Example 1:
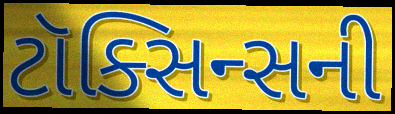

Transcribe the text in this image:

ટૉક્સિન્સની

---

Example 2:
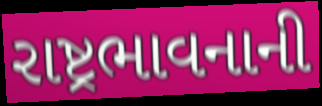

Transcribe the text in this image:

રાષ્ટ્રભાવનાની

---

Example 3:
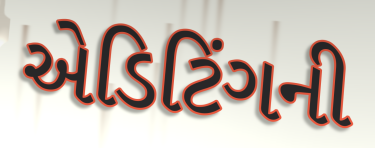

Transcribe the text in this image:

એડિટિંગની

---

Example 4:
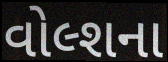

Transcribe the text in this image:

વોલ્શના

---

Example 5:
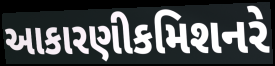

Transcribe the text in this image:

આકારણીકમિશનરે